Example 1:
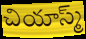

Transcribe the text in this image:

చియాస్మ్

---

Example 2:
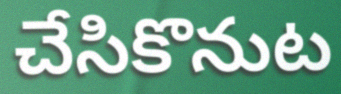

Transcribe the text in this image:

చేసికొనుట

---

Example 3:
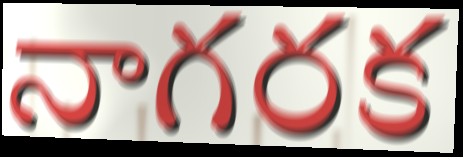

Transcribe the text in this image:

నాగరక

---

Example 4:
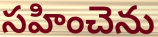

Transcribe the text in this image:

సహించెను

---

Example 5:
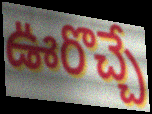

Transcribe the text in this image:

ఊరొచ్చే